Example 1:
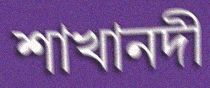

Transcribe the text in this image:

শাখানদী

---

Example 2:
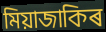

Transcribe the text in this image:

মিয়াজাকিৰ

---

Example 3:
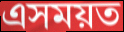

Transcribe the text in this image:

এসময়ত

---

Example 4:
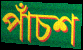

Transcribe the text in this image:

পাঁচশ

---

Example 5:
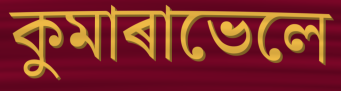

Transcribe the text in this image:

কুমাৰাভেলে